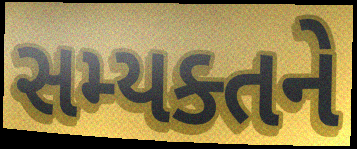
સમ્યક્તને